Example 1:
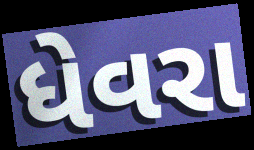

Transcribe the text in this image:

ધેવરા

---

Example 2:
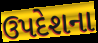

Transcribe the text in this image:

ઉપદેશના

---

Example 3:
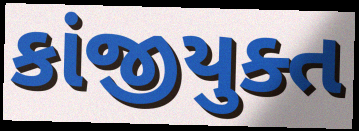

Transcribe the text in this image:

કાંજીયુક્ત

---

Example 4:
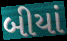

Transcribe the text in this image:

બીયાં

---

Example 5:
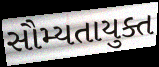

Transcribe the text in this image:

સૌમ્યતાયુક્ત